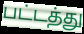
பட்டத்து